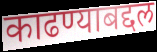
काढण्याबद्दल